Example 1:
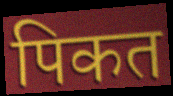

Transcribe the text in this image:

पिकत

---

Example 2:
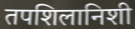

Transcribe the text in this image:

तपशिलानिशी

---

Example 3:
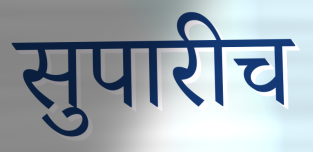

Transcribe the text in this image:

सुपारीच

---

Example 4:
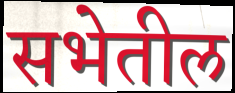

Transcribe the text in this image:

सभेतील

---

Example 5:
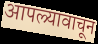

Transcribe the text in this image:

आपल्यावाचून